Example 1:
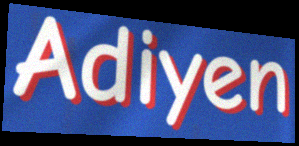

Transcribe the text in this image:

Adiyen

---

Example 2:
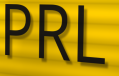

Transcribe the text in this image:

PRL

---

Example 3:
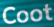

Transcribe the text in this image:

Coot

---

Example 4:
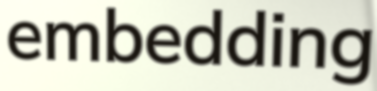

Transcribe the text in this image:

embedding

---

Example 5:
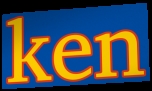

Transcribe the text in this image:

ken